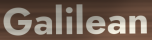
Galilean